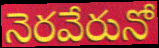
నెరవేరునో